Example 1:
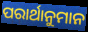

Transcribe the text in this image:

ପରାର୍ଥାନୁମାନ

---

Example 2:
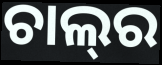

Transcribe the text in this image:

ଚାଲ୍‌ର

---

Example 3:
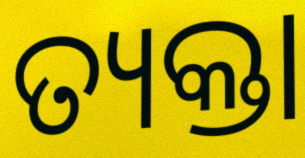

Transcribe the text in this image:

ତ୍ୟକ୍ତା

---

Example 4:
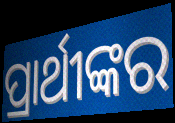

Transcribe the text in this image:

ପ୍ରାର୍ଥୀଙ୍କର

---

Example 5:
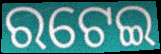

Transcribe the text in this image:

ରଟେଇ